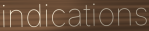
indications